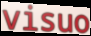
visuo